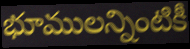
భూములన్నింటికీ